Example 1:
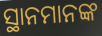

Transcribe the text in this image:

ସ୍ଥାନମାନଙ୍କ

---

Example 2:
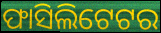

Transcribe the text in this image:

ଫାସିଲିଟେଟର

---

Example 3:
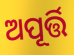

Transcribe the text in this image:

ଅପୂର୍ତ୍ତି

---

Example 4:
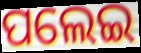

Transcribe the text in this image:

ପଲେଇ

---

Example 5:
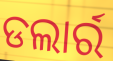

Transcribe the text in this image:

ଡଲାର୍ର